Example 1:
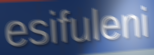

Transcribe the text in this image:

esifuleni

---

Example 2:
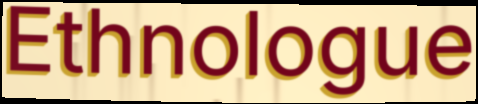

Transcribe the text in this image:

Ethnologue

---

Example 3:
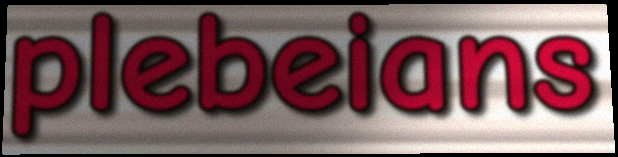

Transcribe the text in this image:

plebeians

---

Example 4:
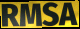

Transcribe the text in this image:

RMSA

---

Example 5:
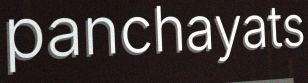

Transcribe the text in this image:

panchayats